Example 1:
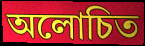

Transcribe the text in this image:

অলোচিত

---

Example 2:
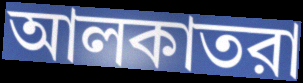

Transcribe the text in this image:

আলকাতরা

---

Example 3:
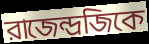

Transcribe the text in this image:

রাজেন্দ্রজিকে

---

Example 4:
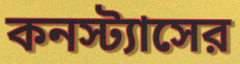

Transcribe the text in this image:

কনস্ট্যাসের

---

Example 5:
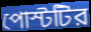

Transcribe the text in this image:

পোস্টটির